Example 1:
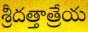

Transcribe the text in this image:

శ్రీదత్తాత్రేయ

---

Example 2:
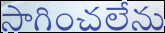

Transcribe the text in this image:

సాగించలేను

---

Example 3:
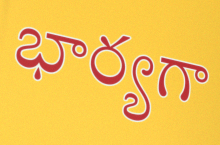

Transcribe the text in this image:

భార్యగా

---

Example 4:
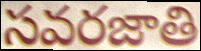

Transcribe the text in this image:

సవరజాతి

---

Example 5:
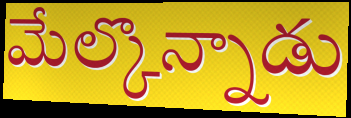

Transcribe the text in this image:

మేల్కొన్నాడు